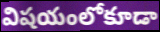
విషయంలోకూడా